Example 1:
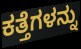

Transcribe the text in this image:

ಕತ್ತೆಗಳನ್ನು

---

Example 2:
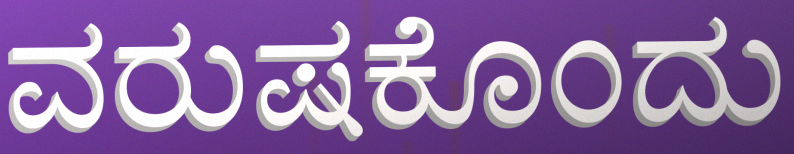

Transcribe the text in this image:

ವರುಷಕೊಂದು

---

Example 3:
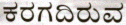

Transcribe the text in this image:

ಕರಗದಿರುವ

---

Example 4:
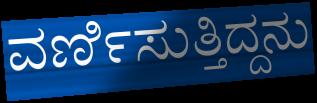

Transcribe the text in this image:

ವರ್ಣಿಸುತ್ತಿದ್ದನು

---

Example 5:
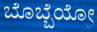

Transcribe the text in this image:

ಬೊಬ್ಬೆಯೋ